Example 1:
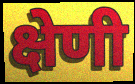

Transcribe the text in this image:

क्षेणी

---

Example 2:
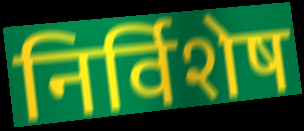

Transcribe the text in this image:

निर्विशेष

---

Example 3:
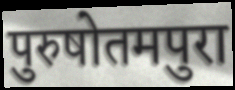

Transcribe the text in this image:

पुरुषोतमपुरा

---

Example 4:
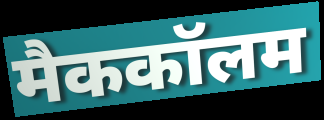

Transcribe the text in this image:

मैककॉलम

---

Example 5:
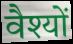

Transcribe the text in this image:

वैश्‍यों